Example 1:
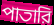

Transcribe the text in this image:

পাতারি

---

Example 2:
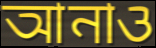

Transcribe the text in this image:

আনাও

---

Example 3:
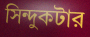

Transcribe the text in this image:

সিন্দুকটার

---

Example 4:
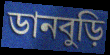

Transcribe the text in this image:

ডানবুড়ি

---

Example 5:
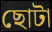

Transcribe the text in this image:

ছোটা